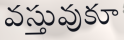
వస్తువుకూ